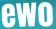
ewo